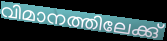
വിമാനത്തിലേക്കു്